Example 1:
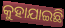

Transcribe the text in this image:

କୁହାଯାଇଛି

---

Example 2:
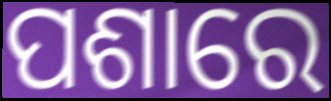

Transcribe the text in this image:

ପଶାରେ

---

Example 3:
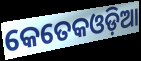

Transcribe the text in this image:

କେତେକଓଡ଼ିଆ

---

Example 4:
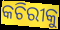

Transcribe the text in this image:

କଚିରୀକୁ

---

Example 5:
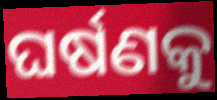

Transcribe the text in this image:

ଘର୍ଷଣକୁ